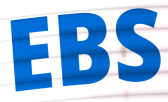
EBS